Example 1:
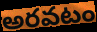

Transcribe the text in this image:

అరవటం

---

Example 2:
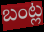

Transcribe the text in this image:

బంట్ల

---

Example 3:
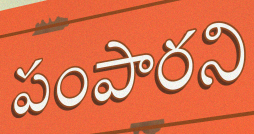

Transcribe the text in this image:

పంపారని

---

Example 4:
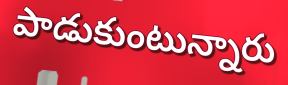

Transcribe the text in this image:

పాడుకుంటున్నారు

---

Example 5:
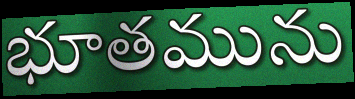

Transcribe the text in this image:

భూతమును